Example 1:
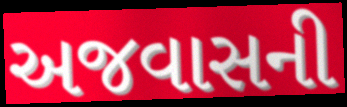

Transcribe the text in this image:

અજવાસની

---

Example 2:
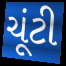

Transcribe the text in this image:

ચૂંટી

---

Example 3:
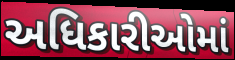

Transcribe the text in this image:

અધિકારીઓમાં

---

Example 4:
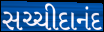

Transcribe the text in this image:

સચ્ચીદાનંદ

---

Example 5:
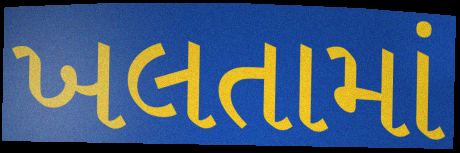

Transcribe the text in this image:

ખલતામાં